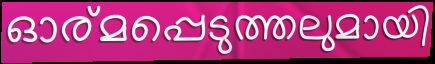
ഓര്മപ്പെടുത്തലുമായി